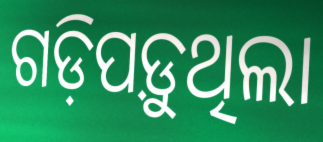
ଗଡ଼ିପଡ଼ୁଥିଲା